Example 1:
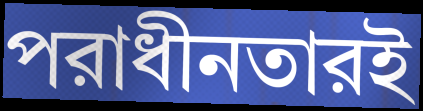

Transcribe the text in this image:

পরাধীনতারই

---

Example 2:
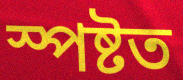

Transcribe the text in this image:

স্পষ্টত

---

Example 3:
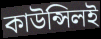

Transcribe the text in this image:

কাউন্সিলই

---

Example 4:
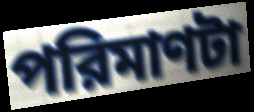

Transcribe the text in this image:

পরিমাণটা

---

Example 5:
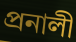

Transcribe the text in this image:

প্রনালী